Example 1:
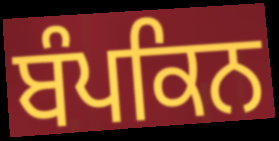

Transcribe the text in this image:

ਬੰਪਕਿਨ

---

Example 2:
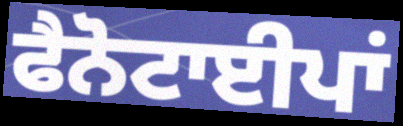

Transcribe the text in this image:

ਫੈਨੋਟਾਈਪਾਂ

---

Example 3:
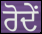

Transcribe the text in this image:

ਰੋਦੇਂ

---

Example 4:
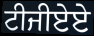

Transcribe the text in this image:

ਟੀਜੀਏਏ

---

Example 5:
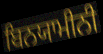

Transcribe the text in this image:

ਬਿਨਯਾਮੀਨੀ